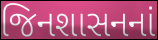
જિનશાસનનાં